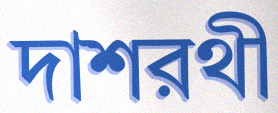
দাশরথী